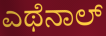
ಎಥೆನಾಲ್